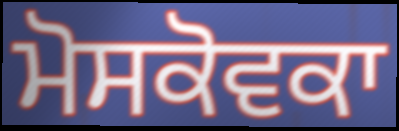
ਮੋਸਕੋਵਕਾ